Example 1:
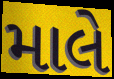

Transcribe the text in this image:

માલે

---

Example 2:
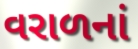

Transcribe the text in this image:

વરાળનાં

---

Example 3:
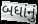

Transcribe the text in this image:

બધાંનું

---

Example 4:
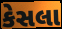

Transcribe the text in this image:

કેસલા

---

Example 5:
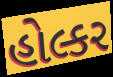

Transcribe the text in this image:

હોલ્કર